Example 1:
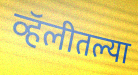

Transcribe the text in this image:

व्हॅलीतल्या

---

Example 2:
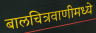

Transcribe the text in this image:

बालचित्रवाणीमध्ये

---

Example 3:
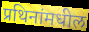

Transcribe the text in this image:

प्रथिनांमधील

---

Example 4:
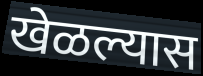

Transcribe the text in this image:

खेळल्यास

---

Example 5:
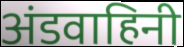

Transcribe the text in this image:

अंडवाहिनी